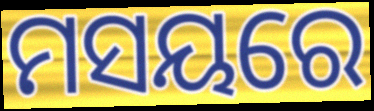
ମସୟରେ